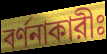
বর্ণনাকারীঃ